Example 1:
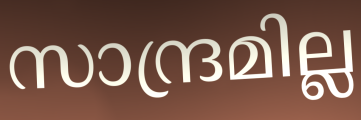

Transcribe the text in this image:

സാന്ദ്രമില്ല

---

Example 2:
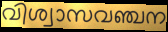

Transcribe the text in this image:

വിശ്വാസവഞ്ചന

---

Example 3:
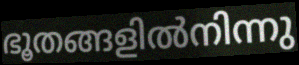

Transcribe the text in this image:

ഭൂതങ്ങളിൽനിന്നു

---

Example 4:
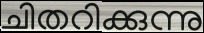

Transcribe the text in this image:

ചിതറിക്കുന്നു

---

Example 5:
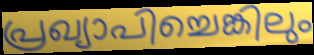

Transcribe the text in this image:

പ്രഖ്യാപിച്ചെങ്കിലും